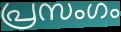
പ്രസംഗം